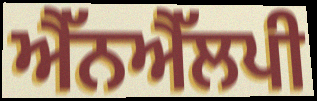
ਐੱਨਐੱਲਪੀ